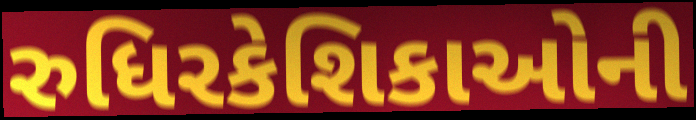
રુધિરકેશિકાઓની